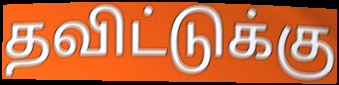
தவிட்டுக்கு